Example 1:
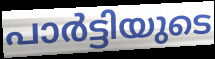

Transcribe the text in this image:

പാർട്ടിയുടെ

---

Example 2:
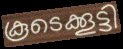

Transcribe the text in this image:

കൂടെക്കൂട്ടി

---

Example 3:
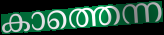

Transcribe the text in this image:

കാത്തെന്ന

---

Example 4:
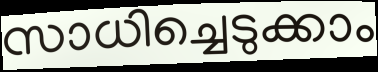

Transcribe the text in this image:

സാധിച്ചെടുക്കാം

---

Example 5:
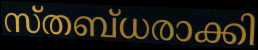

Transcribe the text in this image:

സ്തബ്ധരാക്കി